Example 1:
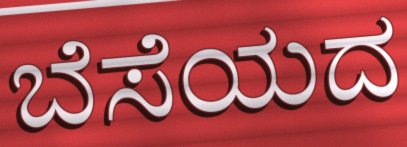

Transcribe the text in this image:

ಬೆಸೆಯದ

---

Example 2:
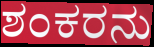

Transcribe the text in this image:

ಶಂಕರನು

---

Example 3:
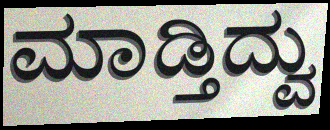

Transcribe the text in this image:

ಮಾಡ್ತಿದ್ವು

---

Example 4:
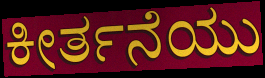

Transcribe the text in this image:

ಕೀರ್ತನೆಯು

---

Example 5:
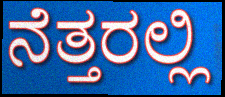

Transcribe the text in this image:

ನೆತ್ತರಲ್ಲಿ